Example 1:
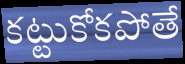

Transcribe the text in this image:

కట్టుకోకపోతే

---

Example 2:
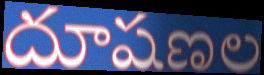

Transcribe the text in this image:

దూషణల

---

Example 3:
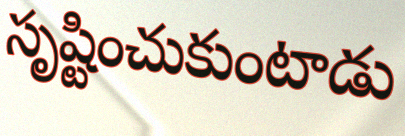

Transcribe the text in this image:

సృష్టించుకుంటాడు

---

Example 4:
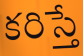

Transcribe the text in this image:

కరిస్తే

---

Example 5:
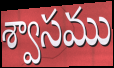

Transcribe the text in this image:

శ్వాసము